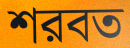
শরবত